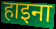
हाइना